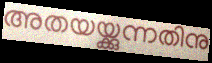
അതയയ്ക്കുന്നതിനു